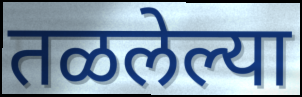
तळलेल्या